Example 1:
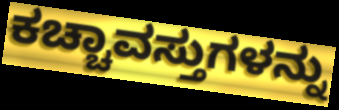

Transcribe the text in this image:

ಕಚ್ಚಾವಸ್ತುಗಳನ್ನು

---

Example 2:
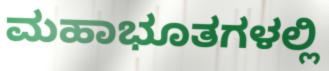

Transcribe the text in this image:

ಮಹಾಭೂತಗಳಲ್ಲಿ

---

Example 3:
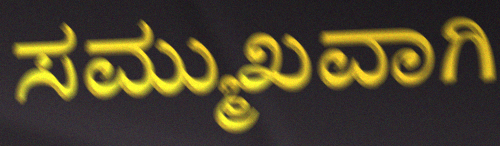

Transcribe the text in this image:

ಸಮ್ಮುಖವಾಗಿ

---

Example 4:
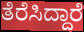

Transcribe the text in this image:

ತೆರೆಸಿದ್ದಾರೆ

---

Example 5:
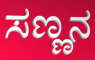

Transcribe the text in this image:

ಸಣ್ಣನ